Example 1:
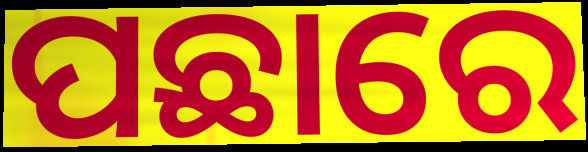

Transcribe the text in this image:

ପଛାରେ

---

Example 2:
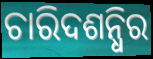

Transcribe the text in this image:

ଚାରିଦଶନ୍ଧିର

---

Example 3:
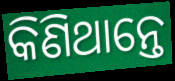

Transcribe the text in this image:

କିଣିଥାନ୍ତେ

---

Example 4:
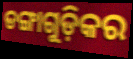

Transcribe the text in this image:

ଡଙ୍ଗାଗୁଡ଼ିକର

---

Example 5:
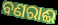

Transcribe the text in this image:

ବଣରାଈ